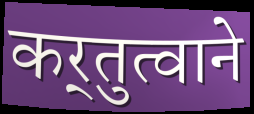
कर्तुत्वाने